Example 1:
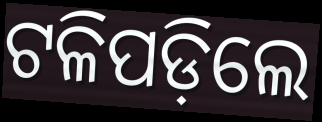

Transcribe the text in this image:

ଟଳିପଡ଼ିଲେ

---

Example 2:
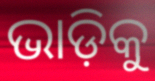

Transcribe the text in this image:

ଭାଡ଼ିକୁ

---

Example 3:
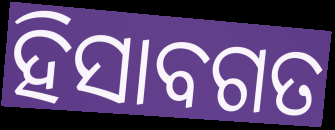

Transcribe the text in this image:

ହିସାବଗତ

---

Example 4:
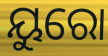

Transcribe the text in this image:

ୟୁରୋ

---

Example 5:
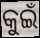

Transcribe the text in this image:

କୁଇଁ